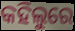
କହିଲୁରେ